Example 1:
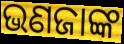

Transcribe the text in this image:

ଭଣଜାଙ୍କ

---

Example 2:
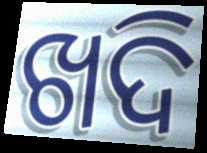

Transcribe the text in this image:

ଖଦି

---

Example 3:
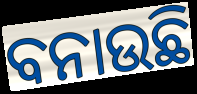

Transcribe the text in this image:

ବନାଉଛି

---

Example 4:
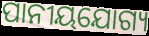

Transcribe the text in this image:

ପାନୀୟଯୋଗ୍ୟ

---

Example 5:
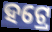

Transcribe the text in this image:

ହଟ୍ରେ